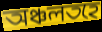
অঞ্চলতহে